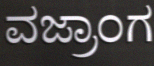
ವಜ್ರಾಂಗ